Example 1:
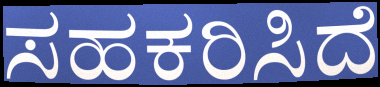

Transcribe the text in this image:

ಸಹಕರಿಸಿದೆ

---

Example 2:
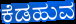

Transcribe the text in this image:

ಕೆಡಹುವ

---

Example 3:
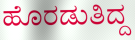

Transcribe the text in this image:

ಹೊರಡುತಿದ್ದ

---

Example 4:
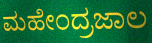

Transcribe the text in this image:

ಮಹೇಂದ್ರಜಾಲ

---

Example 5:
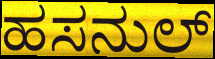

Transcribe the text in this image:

ಹಸನುಲ್